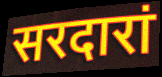
सरदारां